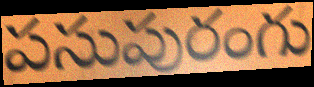
పసుపురంగు